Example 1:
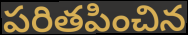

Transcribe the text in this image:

పరితపించిన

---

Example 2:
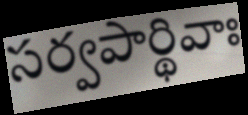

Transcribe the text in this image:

సర్వపార్థివాః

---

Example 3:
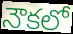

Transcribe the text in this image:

నౌకలో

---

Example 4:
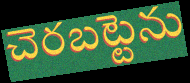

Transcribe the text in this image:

చెరబట్టెను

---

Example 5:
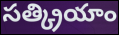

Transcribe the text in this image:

సత్క్రియాం